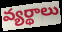
వ్యర్థాలు